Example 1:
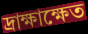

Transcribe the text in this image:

দ্রাক্ষাক্ষেত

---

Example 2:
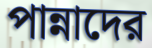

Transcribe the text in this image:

পান্নাদের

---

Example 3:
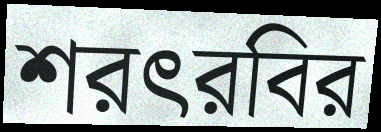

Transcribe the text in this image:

শরৎরবির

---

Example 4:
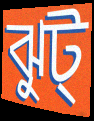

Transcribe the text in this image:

ঝুট্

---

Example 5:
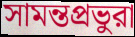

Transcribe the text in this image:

সামন্তপ্রভুরা